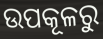
ଉପକୂଳରୁ